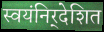
स्वयंनिर्देशित